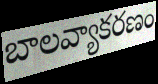
బాలవ్యాకరణం